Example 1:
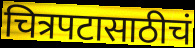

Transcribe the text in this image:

चित्रपटासाठीचं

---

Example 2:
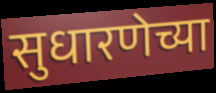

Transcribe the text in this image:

सुधारणेच्या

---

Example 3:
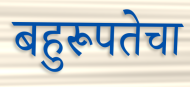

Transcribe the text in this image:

बहुरूपतेचा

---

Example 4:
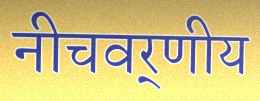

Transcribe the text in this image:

नीचवर्णीय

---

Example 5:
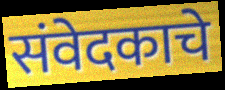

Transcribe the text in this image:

संवेदकाचे